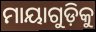
ମାୟାଗୁଡ଼ିକୁ